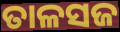
ତାଳସଜ